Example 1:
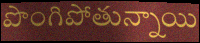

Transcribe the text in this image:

పొంగిపోతున్నాయి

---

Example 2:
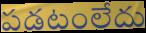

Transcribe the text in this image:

పడటంలేదు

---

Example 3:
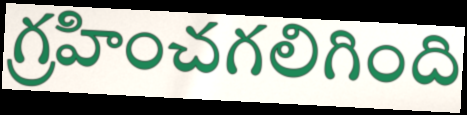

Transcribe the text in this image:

గ్రహించగలిగింది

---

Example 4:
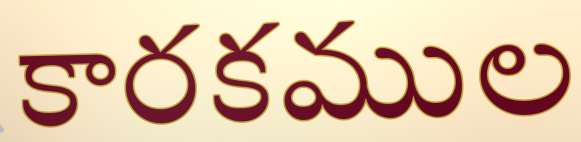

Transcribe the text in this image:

కారకముల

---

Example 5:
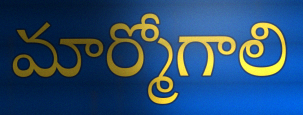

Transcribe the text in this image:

మార్మోగాలి